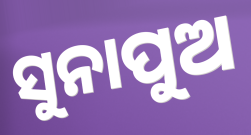
ସୁନାପୁଅ